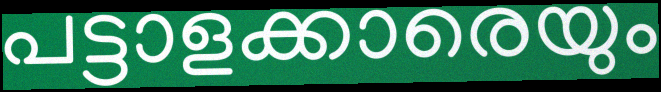
പട്ടാളക്കാരെയും